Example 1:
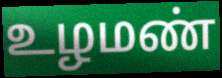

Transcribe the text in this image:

உழமண்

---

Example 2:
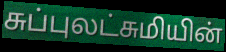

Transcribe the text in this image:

சுப்புலட்சுமியின்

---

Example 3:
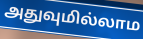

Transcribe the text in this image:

அதுவுமில்லாம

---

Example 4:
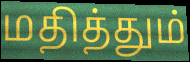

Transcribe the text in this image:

மதித்தும்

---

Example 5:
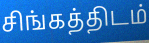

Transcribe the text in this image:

சிங்கத்திடம்